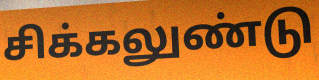
சிக்கலுண்டு